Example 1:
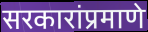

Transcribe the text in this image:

सरकारांप्रमाणे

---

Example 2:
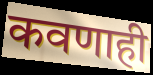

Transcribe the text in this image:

कवणाही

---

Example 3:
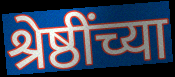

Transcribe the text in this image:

श्रेष्ठींच्या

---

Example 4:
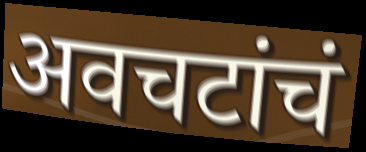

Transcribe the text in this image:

अवचटांचं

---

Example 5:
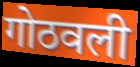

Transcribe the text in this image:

गोठवली